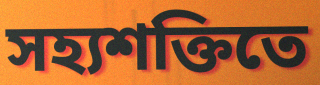
সহ্যশক্তিতে